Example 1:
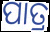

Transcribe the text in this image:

ପାତ୍ର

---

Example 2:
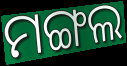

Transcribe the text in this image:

ମଙ୍ଗଲ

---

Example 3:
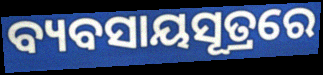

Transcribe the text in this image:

ବ୍ୟବସାୟସୂତ୍ରରେ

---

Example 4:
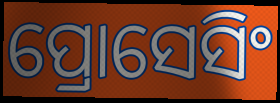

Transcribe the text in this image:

ପ୍ରୋସେସିଂ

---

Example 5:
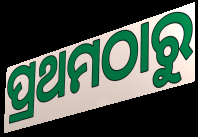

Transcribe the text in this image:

ପ୍ରଥମଠାରୁ